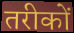
तरीकों